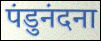
पंडुनंदना